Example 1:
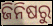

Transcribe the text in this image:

ଜିନିଷରୁ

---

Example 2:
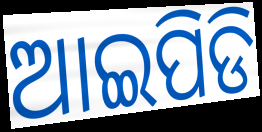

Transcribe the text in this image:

ଆଇପିଡି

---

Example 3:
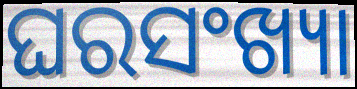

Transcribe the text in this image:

ଘରସଂଖ୍ୟା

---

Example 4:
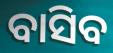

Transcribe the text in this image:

ବାସିବ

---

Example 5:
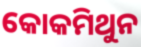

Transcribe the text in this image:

କୋକମିଥୁନ